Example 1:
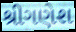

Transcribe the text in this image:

શ્રીગણેશ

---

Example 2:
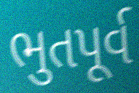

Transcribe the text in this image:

ભુતપૂર્વ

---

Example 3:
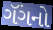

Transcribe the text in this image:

ગૅંગનો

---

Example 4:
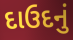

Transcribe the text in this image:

દાઉદનું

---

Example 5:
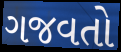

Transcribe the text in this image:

ગજવતો